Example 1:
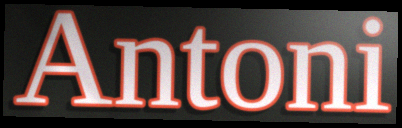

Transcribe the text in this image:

Antoni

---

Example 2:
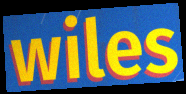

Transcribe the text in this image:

wiles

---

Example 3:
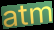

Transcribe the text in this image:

atm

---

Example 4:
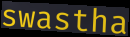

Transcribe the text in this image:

swastha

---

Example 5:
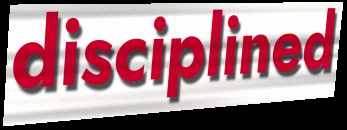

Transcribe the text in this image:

disciplined